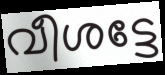
വീശട്ടേ